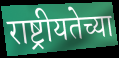
राष्ट्रीयतेच्या